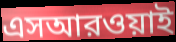
এসআরওয়াই